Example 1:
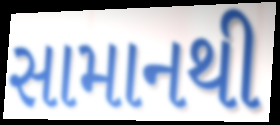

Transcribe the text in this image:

સામાનથી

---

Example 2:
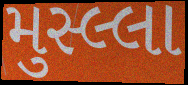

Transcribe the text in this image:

મુસ્લ્લા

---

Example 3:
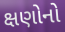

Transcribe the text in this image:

ક્ષણોનો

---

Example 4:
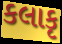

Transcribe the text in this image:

કલાકૃ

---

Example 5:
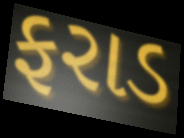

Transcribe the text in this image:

ફરાડ